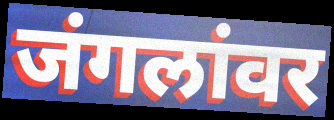
जंगलांवर